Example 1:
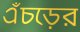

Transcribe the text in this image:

এঁচড়ের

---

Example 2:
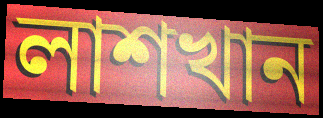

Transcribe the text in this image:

লাশখান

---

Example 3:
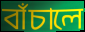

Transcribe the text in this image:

বাঁচালে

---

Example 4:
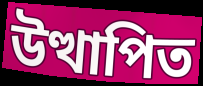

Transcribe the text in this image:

উত্থাপিত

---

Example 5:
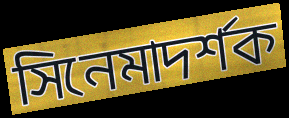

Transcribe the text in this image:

সিনেমাদর্শক